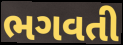
ભગવતી